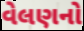
વેલણનો